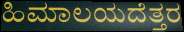
ಹಿಮಾಲಯದೆತ್ತರ